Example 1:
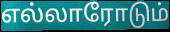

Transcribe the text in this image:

எல்லாரோடும்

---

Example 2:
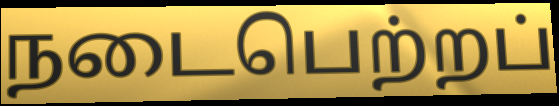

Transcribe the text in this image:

நடைபெற்றப்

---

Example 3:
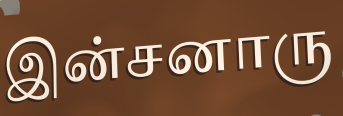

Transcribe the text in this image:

இன்சனாரு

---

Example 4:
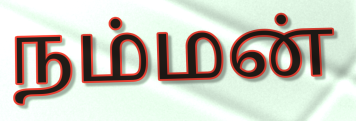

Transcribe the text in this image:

நம்மன்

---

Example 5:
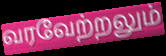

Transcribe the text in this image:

வரவேற்றலும்